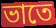
ভাতে